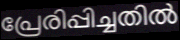
പ്രേരിപ്പിച്ചതിൽ